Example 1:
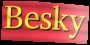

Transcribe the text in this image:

Besky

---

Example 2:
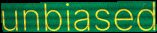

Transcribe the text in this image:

unbiased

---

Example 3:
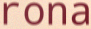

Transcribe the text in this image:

rona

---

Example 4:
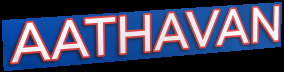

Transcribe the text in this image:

AATHAVAN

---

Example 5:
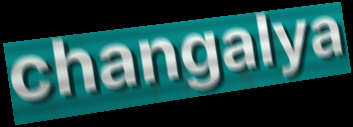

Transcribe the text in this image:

changalya